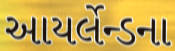
આયર્લેન્ડના